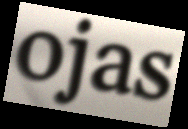
ojas